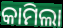
କାମିଲା